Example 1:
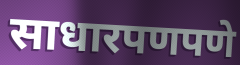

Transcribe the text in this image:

साधारपणपणे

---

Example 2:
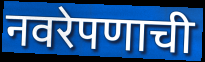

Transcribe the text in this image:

नवरेपणाची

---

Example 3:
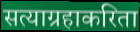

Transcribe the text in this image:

सत्याग्रहाकरिता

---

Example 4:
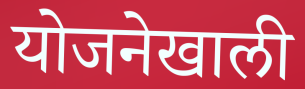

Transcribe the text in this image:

योजनेखाली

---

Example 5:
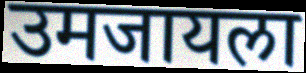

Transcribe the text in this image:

उमजायला